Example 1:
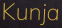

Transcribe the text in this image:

Kunja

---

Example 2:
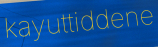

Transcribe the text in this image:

kayuttiddene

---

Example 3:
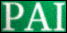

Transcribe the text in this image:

PAI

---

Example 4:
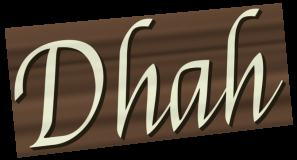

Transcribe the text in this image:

Dhah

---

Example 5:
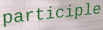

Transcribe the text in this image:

participle